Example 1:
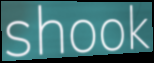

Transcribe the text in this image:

shook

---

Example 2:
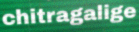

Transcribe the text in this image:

chitragalige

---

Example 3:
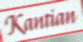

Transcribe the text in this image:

Kantian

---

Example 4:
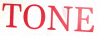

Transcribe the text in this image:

TONE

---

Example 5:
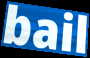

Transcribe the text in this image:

bail